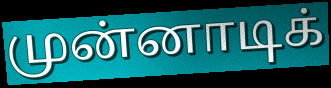
முன்னாடிக்